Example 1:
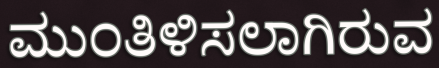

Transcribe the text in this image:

ಮುಂತಿಳಿಸಲಾಗಿರುವ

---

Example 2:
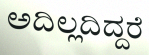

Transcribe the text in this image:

ಅದಿಲ್ಲದಿದ್ದರೆ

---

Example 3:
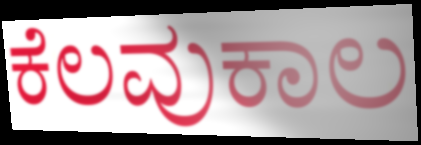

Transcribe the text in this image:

ಕೆಲವುಕಾಲ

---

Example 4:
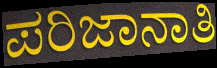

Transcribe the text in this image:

ಪರಿಜಾನಾತಿ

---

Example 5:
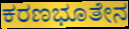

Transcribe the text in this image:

ಕರಣಭೂತೇನ